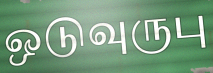
ஒடுவுருபு